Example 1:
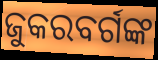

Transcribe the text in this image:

ଜୁକରବର୍ଗଙ୍କ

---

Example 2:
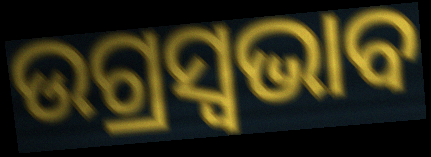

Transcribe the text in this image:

ଉଗ୍ରସ୍ୱଭାବ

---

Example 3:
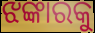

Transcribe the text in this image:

ଝଙ୍କାରକୁ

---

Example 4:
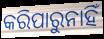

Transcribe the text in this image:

କରିପାରୁନାହିଁ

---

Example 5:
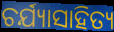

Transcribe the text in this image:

ଚର୍ଯ୍ୟାସାହିତ୍ୟ